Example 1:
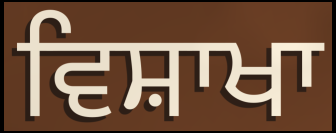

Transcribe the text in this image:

ਵਿਸ਼ਾਖਾ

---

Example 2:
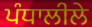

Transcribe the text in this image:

ਪੰਧਾਲੀਲੇ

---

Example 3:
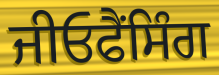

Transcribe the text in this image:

ਜੀਓਫੈਂਸਿੰਗ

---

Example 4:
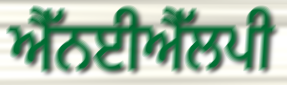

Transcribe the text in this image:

ਐੱਨਈਐੱਲਪੀ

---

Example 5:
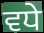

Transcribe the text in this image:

ਵਧੇ